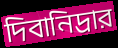
দিবানিদ্রার